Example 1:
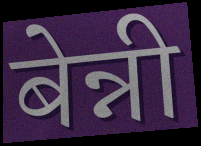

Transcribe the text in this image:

बेन्नी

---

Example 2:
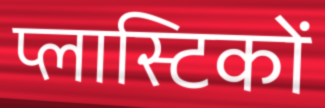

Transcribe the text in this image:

प्लास्टिकों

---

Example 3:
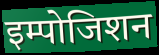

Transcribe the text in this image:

इम्पोजिशन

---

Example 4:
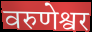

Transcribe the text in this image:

वरुणेश्वर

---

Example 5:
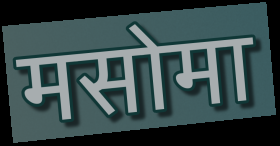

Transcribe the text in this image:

मसोमा